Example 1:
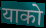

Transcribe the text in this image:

याको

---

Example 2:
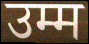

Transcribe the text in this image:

उम्म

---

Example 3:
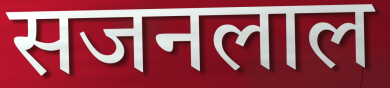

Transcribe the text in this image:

सजनलाल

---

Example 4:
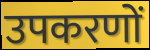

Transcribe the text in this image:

उपकरणों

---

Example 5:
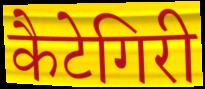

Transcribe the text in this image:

कैटेगिरी